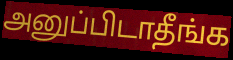
அனுப்பிடாதீங்க